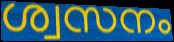
ശ്വസനം